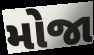
મોજા